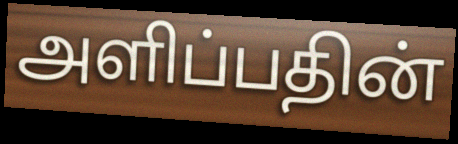
அளிப்பதின்